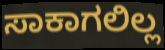
ಸಾಕಾಗಲಿಲ್ಲ